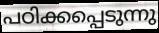
പഠിക്കപ്പെടുന്നു